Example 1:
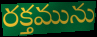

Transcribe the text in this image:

రక్తమును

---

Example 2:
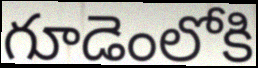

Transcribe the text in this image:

గూడెంలోకి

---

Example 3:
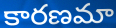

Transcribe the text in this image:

కారణమా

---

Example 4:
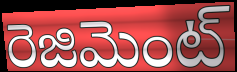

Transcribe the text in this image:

రెజిమెంట్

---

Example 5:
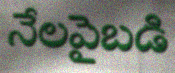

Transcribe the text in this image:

నేలపైబడి